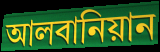
আলবানিয়ান